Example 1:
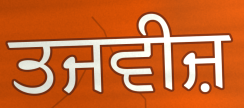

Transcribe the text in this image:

ਤਜਵੀਜ਼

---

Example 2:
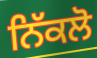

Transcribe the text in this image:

ਨਿੱਕਲੋ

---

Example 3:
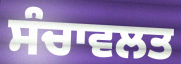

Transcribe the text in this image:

ਸੰਚਾਵਲਤ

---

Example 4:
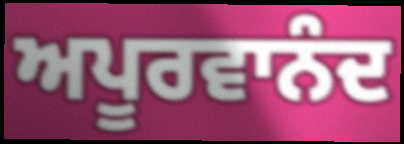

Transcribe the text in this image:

ਅਪੂਰਵਾਨੰਦ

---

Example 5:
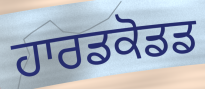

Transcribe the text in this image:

ਹਾਰਡਕੋਡਡ